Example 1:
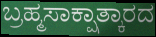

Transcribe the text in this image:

ಬ್ರಹ್ಮಸಾಕ್ಷಾತ್ಕಾರದ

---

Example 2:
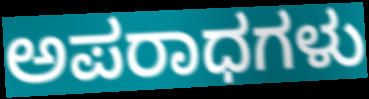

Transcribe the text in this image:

ಅಪರಾಧಗಳು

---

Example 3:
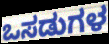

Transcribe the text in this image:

ಒಸಡುಗಳ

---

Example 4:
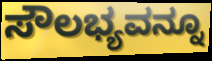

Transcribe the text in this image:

ಸೌಲಭ್ಯವನ್ನೂ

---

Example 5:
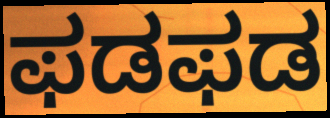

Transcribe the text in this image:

ಫಡಫಡ